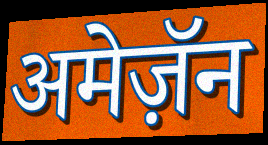
अमेज़ॅन